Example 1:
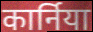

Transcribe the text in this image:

कार्निया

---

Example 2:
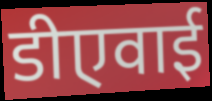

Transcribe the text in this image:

डीएवाई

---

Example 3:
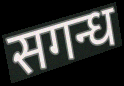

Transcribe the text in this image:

सगन्ध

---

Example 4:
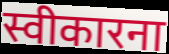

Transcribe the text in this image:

स्वीकारना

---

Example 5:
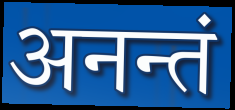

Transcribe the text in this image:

अनन्तं